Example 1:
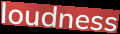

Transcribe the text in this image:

loudness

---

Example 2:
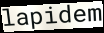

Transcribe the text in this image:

lapidem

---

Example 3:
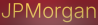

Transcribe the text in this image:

JPMorgan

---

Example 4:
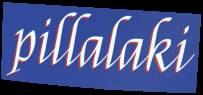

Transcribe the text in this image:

pillalaki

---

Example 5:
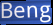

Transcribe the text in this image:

Beng